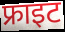
फ्राइट